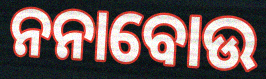
ନନାବୋଉ